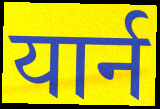
यार्न